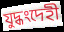
যুদ্ধংদেহী